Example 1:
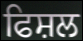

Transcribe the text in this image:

ਫਿਸ਼ਲ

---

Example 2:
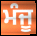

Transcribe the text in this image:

ਮੰਜੂ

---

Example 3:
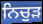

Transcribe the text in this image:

ਨਿਚੁੜ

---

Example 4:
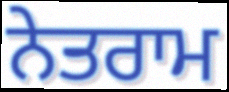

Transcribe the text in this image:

ਨੇਤਰਾਮ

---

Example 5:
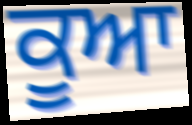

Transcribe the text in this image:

ਕੂਆ